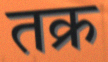
तक्र